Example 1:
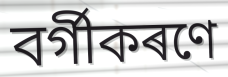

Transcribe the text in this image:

বৰ্গীকৰণে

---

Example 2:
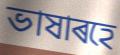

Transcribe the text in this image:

ভাষাৰহে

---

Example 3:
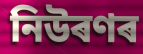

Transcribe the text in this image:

নিউৰণৰ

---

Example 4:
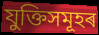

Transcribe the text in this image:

যুক্তিসমূহৰ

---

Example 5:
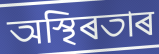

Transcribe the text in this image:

অস্থিৰতাৰ